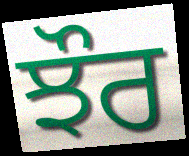
ਝੌਰ